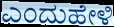
ಎಂದುಹೇಳಿ